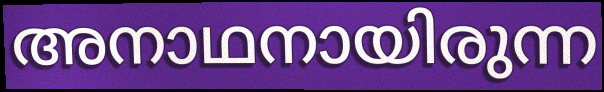
അനാഥനായിരുന്ന